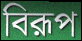
বিরূপ